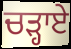
ਚੜ੍ਹਾਏ